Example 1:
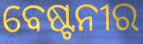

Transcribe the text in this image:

ବେଷ୍ଟନୀର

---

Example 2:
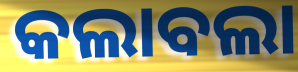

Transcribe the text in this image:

କଲାବଲା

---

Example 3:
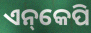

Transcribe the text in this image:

ଏନ୍‌କେପି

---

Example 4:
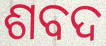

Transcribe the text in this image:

ଶବଦ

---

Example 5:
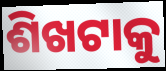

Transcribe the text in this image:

ଶିଖଟାକୁ